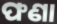
ଫଣା